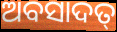
ଅବସାଦତ୍